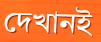
দেখানই